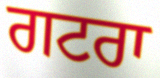
ਗਟਰਾ